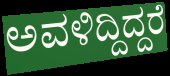
ಅವಳಿದ್ದಿದ್ದರೆ